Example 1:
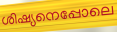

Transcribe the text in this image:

ശിഷ്യനെപ്പോലെ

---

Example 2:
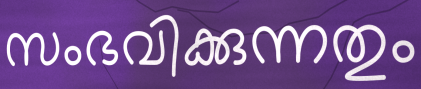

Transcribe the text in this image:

സംഭവിക്കുന്നതും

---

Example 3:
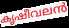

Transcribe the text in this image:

കൃഷീവലൻ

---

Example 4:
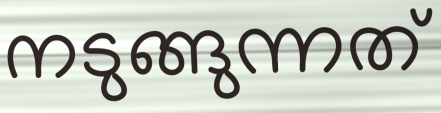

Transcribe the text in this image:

നടുങ്ങുന്നത്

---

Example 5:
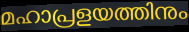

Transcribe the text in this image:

മഹാപ്രളയത്തിനും